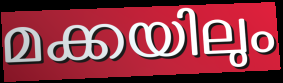
മക്കയിലും